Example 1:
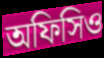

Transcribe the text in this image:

অফিসিও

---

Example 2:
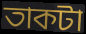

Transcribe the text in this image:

তাকটা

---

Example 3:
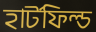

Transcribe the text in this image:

হার্টফিল্ড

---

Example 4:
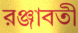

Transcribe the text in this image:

রঞ্জাবতী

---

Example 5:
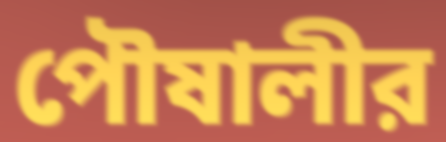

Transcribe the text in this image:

পৌষালীর